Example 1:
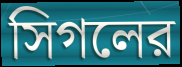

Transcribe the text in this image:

সিগলের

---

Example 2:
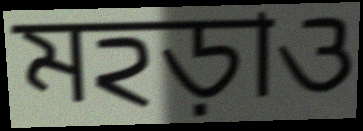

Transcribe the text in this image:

মহড়াও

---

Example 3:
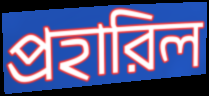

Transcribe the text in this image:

প্রহারিল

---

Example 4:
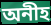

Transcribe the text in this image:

অনীহ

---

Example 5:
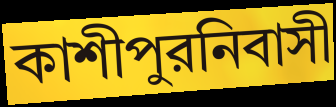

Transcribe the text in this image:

কাশীপুরনিবাসী